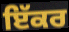
ਇੱਕਰ